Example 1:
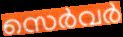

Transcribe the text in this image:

സെർവർ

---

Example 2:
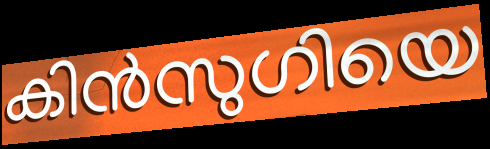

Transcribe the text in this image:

കിൻസുഗിയെ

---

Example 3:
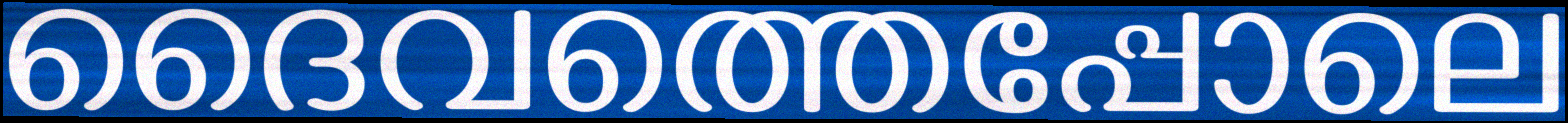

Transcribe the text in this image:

ദൈവത്തെപ്പോലെ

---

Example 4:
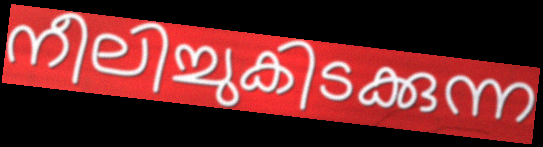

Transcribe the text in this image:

നീലിച്ചുകിടക്കുന്ന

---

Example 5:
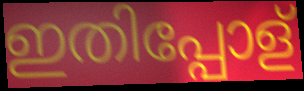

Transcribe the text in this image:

ഇതിപ്പോള്